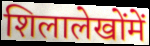
शिलालेखोंमें